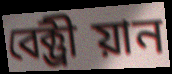
বেক্ট্ৰীয়ান